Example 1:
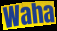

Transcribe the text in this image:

Waha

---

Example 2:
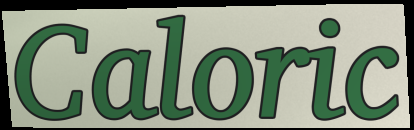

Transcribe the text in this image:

Caloric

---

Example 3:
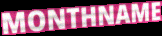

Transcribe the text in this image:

MONTHNAME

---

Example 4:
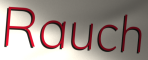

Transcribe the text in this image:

Rauch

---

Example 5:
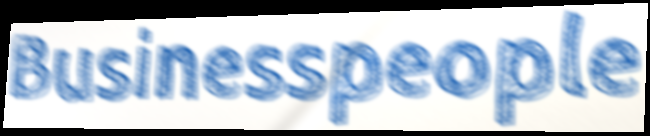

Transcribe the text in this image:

Businesspeople